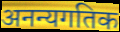
अनन्यगतिक